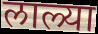
लाल्या